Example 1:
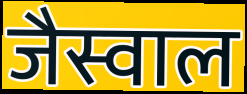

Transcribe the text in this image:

जैस्वाल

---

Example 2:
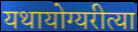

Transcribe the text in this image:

यथायोग्यरीत्या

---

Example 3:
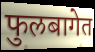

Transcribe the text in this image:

फुलबागेत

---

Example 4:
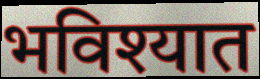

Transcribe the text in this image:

भविश्यात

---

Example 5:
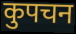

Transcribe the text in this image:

कुपचन